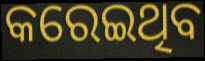
କରେଇଥିବ